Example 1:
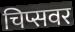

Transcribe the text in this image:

चिप्सवर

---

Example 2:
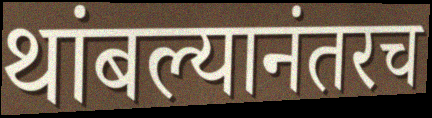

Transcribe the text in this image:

थांबल्यानंतरच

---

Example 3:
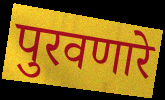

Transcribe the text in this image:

पुरवणारे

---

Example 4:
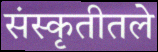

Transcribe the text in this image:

संस्कृतीतले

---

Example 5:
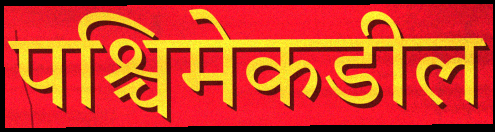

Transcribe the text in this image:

पश्चिमेकडील